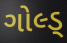
ગોલ્ડ્